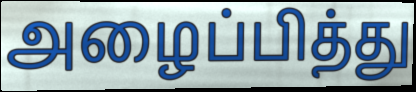
அழைப்பித்து